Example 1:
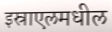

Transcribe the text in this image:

इस्राएलमधील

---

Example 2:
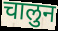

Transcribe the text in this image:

चालुन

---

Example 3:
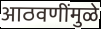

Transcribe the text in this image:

आठवणींमुळे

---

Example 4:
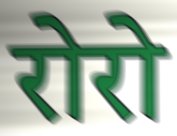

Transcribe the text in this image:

रोरो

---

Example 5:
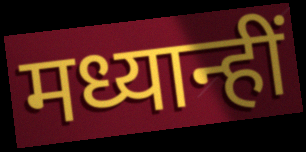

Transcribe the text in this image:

मध्यान्हीं